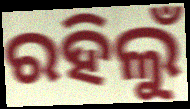
ରହିଲୁଁ